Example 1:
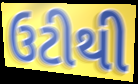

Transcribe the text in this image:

ઉટીથી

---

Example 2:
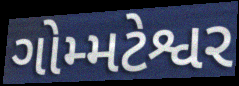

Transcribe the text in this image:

ગોમ્મટેશ્વર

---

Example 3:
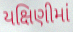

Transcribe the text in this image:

યક્ષિણીમાં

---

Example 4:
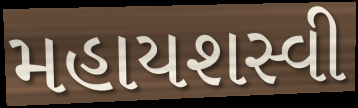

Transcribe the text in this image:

મહાયશસ્વી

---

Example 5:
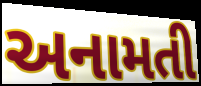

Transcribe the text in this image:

અનામતી